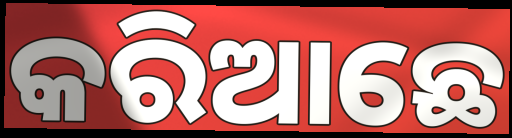
କରିଆଛେ